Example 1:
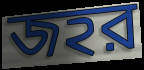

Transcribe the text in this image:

জহর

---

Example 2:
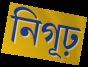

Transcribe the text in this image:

নিগূঢ়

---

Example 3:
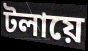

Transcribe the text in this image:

টলায়ে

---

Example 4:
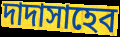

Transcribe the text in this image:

দাদাসাহেব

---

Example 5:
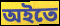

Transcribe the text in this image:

অইতে